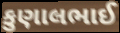
કુણાલભાઈ